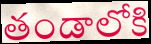
తండాలోకి